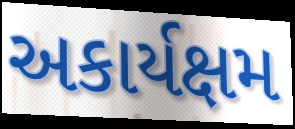
અકાર્યક્ષમ